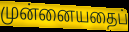
முன்னையதைப்